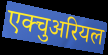
एक्चुअरियल